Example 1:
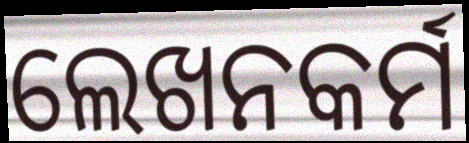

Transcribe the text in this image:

ଲେଖନକର୍ମ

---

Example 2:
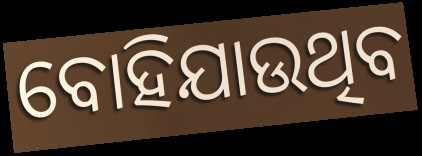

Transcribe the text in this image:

ବୋହିଯାଉଥିବ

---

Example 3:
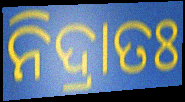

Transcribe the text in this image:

ନିଦ୍ରାତଃ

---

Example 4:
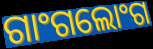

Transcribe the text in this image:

ଗାଂଗଲୋଂଗ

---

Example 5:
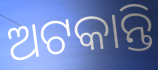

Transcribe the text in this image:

ଅଟକାନ୍ତି